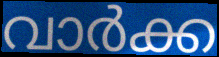
വാർക്ക